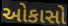
ઓકાસો